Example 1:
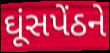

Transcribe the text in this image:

ઘૂંસપેંઠને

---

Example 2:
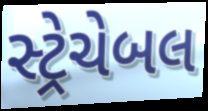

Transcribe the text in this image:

સ્ટ્રેચેબલ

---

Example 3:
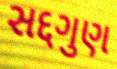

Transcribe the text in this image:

સદ્દગુણ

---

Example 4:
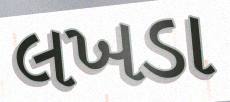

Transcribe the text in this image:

લખડા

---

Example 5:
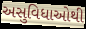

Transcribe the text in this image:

અસુવિધાઓથી